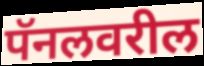
पॅनलवरील